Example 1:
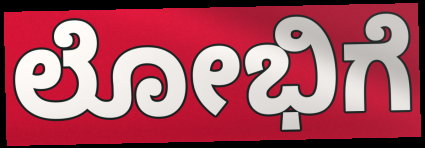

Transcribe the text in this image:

ಲೋಭಿಗೆ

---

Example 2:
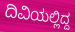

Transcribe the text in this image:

ದಿವಿಯಲ್ಲಿದ್ದ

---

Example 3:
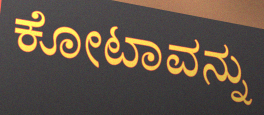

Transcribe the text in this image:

ಕೋಟಾವನ್ನು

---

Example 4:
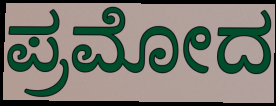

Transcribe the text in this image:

ಪ್ರಮೋದ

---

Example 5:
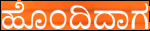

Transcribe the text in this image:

ಹೊಂದಿದಾಗ